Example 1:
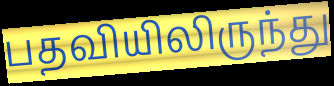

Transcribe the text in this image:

பதவியிலிருந்து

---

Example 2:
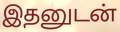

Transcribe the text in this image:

இதனுடன்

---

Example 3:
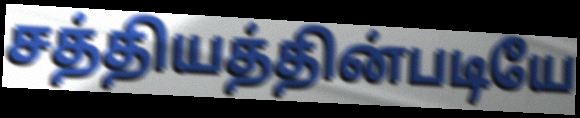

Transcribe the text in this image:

சத்தியத்தின்படியே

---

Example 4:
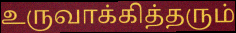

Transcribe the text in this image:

உருவாக்கித்தரும்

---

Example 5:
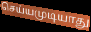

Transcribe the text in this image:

செய்யமுடியாது